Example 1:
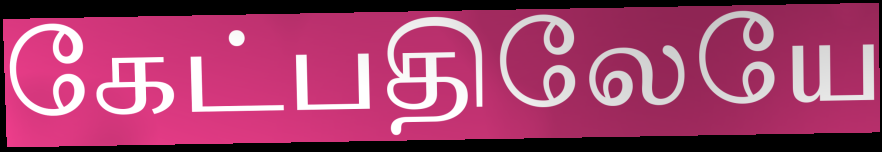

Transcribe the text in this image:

கேட்பதிலேயே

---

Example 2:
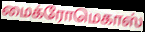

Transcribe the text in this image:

மைக்ரோமெகாஸ்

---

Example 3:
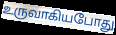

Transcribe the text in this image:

உருவாகியபோது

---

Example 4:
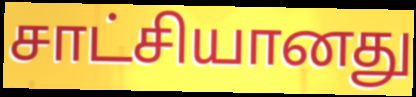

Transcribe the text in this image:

சாட்சியானது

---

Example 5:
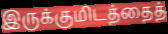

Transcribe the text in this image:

இருக்குமிடத்தைத்